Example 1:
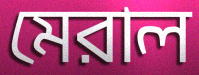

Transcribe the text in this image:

মেরাল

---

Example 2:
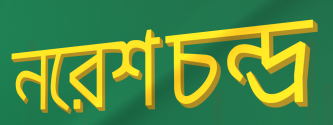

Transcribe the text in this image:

নরেশচন্দ্র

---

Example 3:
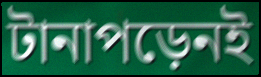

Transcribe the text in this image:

টানাপড়েনই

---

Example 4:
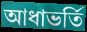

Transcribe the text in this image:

আধাভর্তি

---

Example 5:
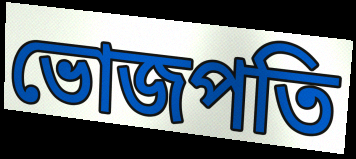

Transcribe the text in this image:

ভোজপতি